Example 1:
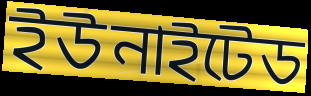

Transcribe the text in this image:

ইউনাইটেড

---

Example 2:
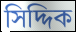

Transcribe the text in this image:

সিদ্দিক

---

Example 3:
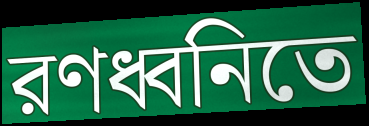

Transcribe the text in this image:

রণধ্বনিতে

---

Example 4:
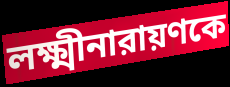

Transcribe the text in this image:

লক্ষ্মীনারায়ণকে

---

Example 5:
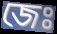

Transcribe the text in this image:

জেঃ